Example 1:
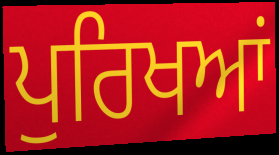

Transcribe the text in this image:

ਪੁਰਿਖਆਂ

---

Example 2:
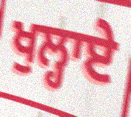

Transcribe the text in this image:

ਖੁਲ੍ਹਾਏ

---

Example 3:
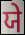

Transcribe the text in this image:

ਯੇ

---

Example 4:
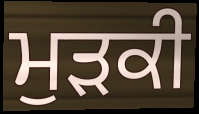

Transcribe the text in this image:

ਮੁੜਕੀ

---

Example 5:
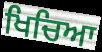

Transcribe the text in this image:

ਖਿਚਿਆ